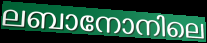
ലബാനോനിലെ